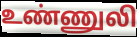
உண்ணுலி